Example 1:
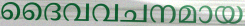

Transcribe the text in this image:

ദൈവവചനമായ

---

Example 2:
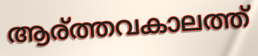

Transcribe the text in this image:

ആര്ത്തവകാലത്ത്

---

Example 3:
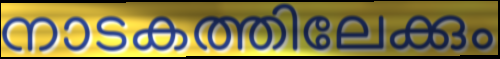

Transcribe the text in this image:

നാടകത്തിലേക്കും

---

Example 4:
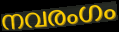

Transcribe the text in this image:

നവരംഗം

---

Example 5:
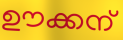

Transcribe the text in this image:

ഊക്കന്